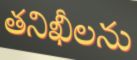
తనిఖీలను